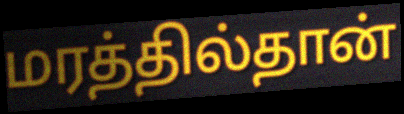
மரத்தில்தான்